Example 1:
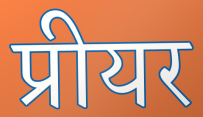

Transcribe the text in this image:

प्रीयर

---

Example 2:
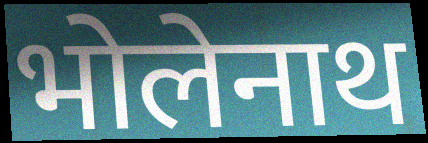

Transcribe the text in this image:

भोलेनाथ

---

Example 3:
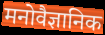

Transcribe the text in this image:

मनोवैज्ञानिक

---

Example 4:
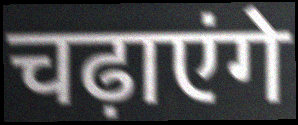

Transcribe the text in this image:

चढ़ाएंगे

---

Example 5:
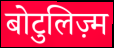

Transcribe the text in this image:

बोटुलिज़्म